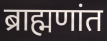
ब्राह्मणांत